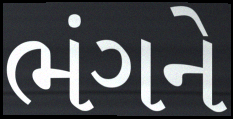
ભંગને